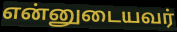
என்னுடையவர்